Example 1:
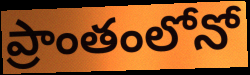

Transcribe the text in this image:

ప్రాంతంలోనో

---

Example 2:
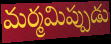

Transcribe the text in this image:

మర్మమిప్పుడు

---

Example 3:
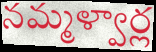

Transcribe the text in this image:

నమ్మళ్వార్ల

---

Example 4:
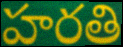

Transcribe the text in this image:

హరతి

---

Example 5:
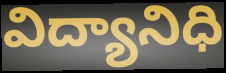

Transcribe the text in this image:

విద్యానిధి